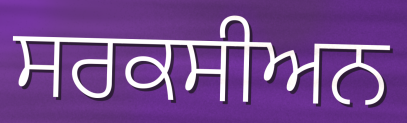
ਸਰਕਸੀਅਨ